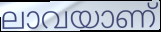
ലാവയാണ്